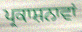
ਪ੍ਰਕਾਸ਼ਨਾਵਾਂ